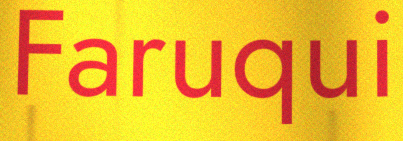
Faruqui